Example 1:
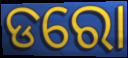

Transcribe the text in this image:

ଡରୋ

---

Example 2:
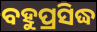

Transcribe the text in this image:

ବହୁପ୍ରସିଦ୍ଧ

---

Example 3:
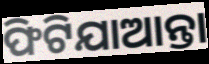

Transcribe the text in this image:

ଫିଟିଯାଆନ୍ତା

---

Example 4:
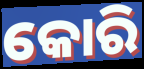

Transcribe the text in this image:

କୋରି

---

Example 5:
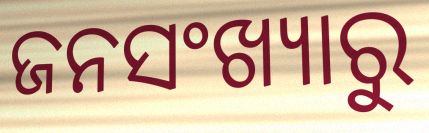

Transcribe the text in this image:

ଜନସଂଖ୍ୟାରୁ